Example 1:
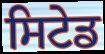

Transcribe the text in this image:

ਸਿਟੇਡ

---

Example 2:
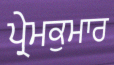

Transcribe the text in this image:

ਪ੍ਰੇਮਕੁਮਾਰ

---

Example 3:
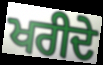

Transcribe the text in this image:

ਖਰੀਦੇ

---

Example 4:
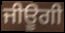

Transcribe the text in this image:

ਜੀਊਗੀ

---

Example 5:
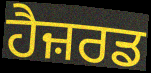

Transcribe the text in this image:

ਹੈਜ਼ਰਡ